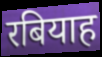
रबियाह